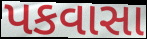
પકવાસા